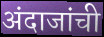
अंदाजांची